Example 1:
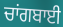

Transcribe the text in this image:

ਚਾਂਗਬਾਈ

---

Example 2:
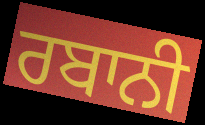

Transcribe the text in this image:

ਰਬਾਨੀ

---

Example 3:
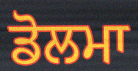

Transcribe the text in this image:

ਡੋਲਮਾ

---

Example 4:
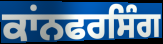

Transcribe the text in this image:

ਕਾਂਨਫਰਸਿੰਗ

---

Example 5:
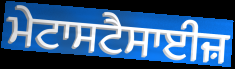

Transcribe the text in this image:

ਮੇਟਾਸਟੈਸਾਈਜ਼